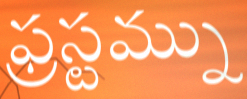
ఫ్రస్టమ్ను